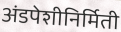
अंडपेशीनिर्मिती